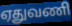
ஏதுவணி